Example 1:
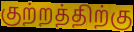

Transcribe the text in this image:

குற்றத்திற்கு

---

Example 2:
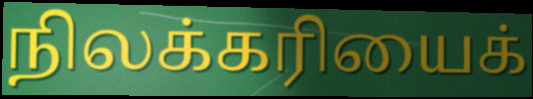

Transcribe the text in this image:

நிலக்கரியைக்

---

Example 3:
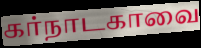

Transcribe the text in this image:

கர்நாடகாவை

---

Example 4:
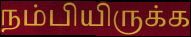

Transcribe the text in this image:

நம்பியிருக்க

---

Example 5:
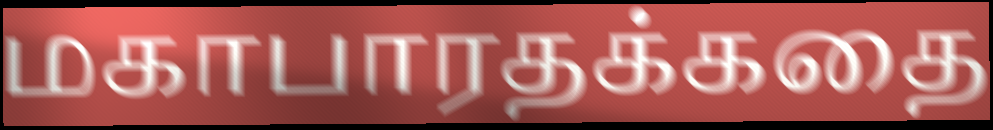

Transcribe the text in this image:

மகாபாரதக்கதை